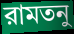
রামতনু